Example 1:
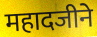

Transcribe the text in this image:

महादजीने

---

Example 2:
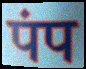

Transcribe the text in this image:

पंप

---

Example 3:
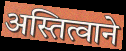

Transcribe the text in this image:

अस्तित्वाने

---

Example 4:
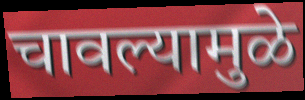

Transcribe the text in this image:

चावल्यामुळे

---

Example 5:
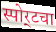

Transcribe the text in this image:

स्पोर्टचा